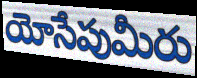
యోసేపుమీరు